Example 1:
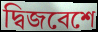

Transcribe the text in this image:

দ্বিজবেশে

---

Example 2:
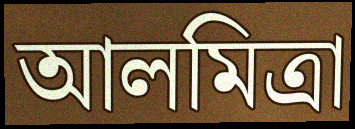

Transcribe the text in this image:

আলমিত্রা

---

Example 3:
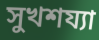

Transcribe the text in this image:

সুখশয্যা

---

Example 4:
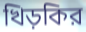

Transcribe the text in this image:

খিড়কির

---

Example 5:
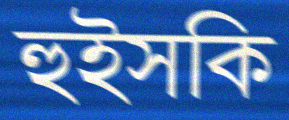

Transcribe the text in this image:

হুইসকি